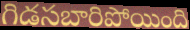
గిడసబారిపోయింది